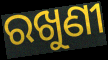
ରଖୁଣୀ